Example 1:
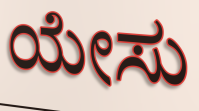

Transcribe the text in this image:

ಯೇಸು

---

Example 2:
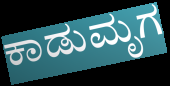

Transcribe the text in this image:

ಕಾಡುಮೃಗ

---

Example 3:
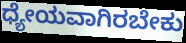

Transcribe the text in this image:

ಧ್ಯೇಯವಾಗಿರಬೇಕು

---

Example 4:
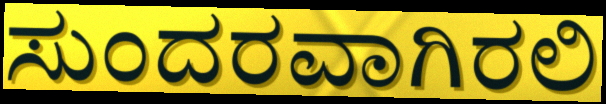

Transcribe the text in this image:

ಸುಂದರವಾಗಿರಲಿ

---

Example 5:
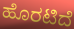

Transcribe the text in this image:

ಹೊರಟಿದೆ